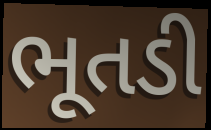
ભૂતડી